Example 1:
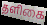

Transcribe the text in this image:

தளிகை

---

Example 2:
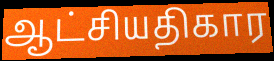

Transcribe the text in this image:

ஆட்சியதிகார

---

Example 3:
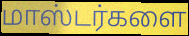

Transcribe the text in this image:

மாஸ்டர்களை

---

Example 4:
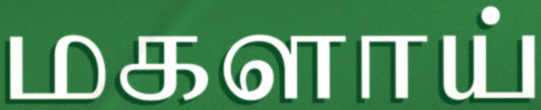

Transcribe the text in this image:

மகளாய்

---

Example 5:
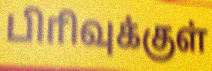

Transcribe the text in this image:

பிரிவுக்குள்